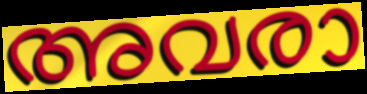
അവരാ